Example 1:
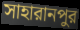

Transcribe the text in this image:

সাহারানপুর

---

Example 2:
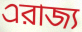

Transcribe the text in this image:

এরাজ্য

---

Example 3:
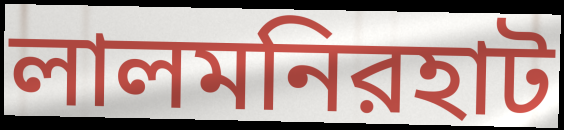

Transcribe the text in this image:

লালমনিরহাট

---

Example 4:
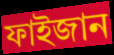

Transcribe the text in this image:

ফাইজান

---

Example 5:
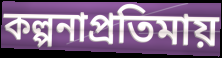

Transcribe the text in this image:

কল্পনাপ্রতিমায়